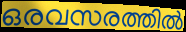
ഒരവസരത്തിൽ